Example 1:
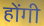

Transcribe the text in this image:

होंगी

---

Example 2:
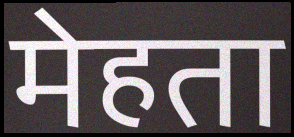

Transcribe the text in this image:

मेहता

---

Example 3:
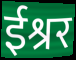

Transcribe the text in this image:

ईश्रर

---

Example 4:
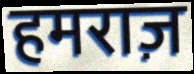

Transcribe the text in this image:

हमराज़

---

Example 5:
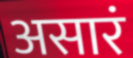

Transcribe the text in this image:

असारं